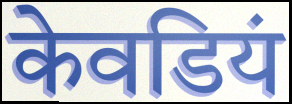
केवडियं